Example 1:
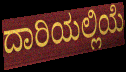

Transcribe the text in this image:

ದಾರಿಯಲ್ಲಿಯೆ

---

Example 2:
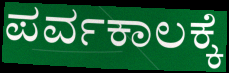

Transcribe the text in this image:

ಪರ್ವಕಾಲಕ್ಕೆ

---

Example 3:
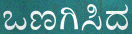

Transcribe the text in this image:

ಒಣಗಿಸಿದ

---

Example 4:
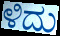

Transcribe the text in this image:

ಳಿದು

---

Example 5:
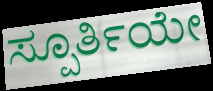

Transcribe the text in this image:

ಸ್ಪೂರ್ತಿಯೇ